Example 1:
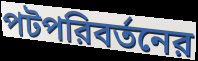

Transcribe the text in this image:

পটপরিবর্তনের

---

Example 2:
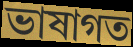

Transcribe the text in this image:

ভাষাগত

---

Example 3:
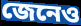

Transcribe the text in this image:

জেনেও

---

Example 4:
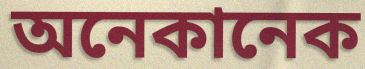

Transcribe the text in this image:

অনেকানেক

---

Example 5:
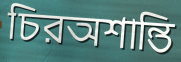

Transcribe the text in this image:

চিরঅশান্তি